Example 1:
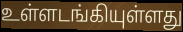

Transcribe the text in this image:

உள்ளடங்கியுள்ளது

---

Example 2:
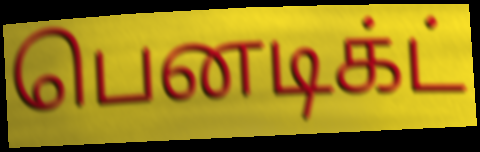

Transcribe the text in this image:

பெனடிக்ட்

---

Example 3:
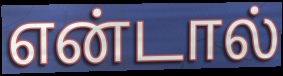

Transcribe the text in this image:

என்டால்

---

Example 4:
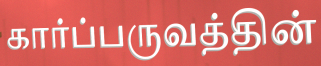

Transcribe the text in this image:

கார்ப்பருவத்தின்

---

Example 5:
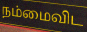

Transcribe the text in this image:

நம்மைவிட